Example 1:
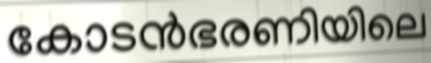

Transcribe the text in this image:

കോടൻഭരണിയിലെ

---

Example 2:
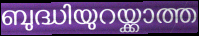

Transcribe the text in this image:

ബുദ്ധിയുറയ്ക്കാത്ത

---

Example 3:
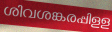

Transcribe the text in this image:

ശിവശങ്കരപ്പിളള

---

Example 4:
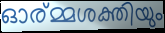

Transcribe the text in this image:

ഓര്മ്മശക്തിയും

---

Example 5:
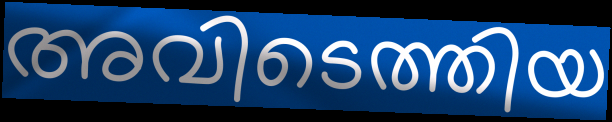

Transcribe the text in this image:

അവിടെത്തിയ